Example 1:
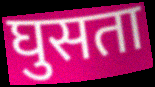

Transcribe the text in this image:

घुसता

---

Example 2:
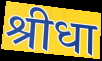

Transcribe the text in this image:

श्रीधा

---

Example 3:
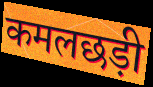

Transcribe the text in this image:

कमलछड़ी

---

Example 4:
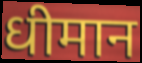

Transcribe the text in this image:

धीमान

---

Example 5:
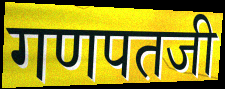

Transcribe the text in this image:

गणपतजी